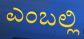
ಎಂಬಲ್ಲಿ